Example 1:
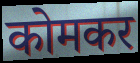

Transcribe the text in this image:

कोमकर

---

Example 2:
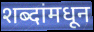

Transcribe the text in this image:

शब्दांमधून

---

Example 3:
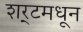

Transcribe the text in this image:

शर्टमधून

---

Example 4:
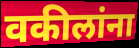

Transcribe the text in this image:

वकीलांना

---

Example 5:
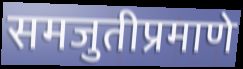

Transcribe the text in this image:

समजुतीप्रमाणे